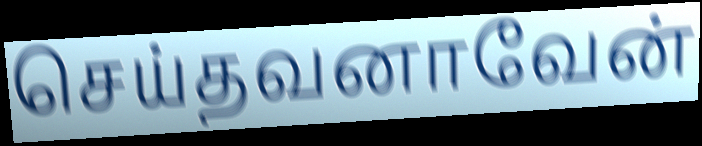
செய்தவனாவேன்